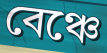
বেঞ্চে